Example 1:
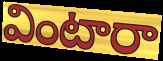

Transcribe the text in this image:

వింటారా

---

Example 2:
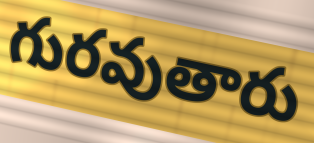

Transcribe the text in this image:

గురవుతారు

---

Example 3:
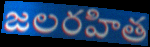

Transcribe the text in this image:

జలరహిత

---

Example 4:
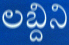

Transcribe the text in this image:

లబ్దిని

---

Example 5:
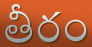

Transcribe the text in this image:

తీరం